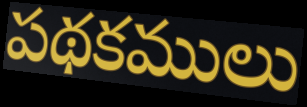
పథకములు